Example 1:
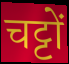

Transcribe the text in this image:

चट्टों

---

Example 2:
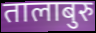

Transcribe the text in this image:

तालाबुरु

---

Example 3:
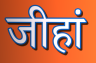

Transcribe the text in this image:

जीहां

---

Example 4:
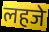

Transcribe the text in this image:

लहजे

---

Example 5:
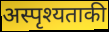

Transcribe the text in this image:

अस्पृश्यताकी